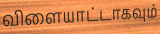
விளையாட்டாகவும்